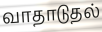
வாதாடுதல்